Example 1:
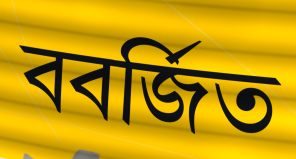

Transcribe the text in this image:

ববর্জিত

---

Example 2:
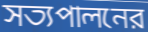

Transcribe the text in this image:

সত্যপালনের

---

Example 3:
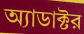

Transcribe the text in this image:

অ্যাডাক্টর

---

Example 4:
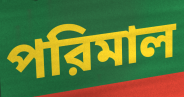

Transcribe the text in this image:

পরিমাল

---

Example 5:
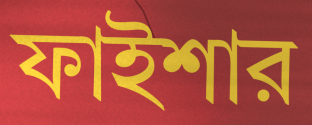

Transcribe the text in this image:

ফাইশার